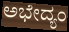
ಅಭೇದ್ಯಂ